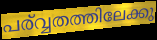
പര്വ്വതത്തിലേക്കു